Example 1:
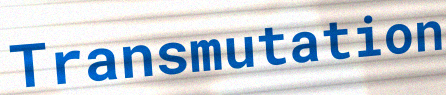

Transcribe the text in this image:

Transmutation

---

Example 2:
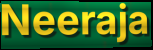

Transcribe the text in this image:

Neeraja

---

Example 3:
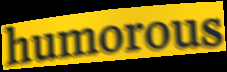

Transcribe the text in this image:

humorous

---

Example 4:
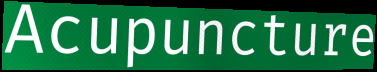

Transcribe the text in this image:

Acupuncture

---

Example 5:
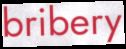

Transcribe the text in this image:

bribery